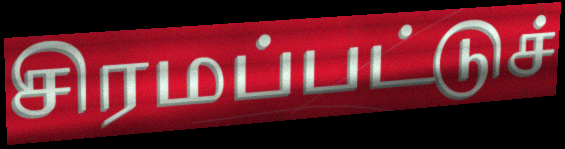
சிரமப்பட்டுச்